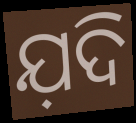
ଯ଼ଦି